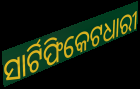
ସାର୍ଟିଫିକେଟଧାରୀ